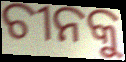
ଚୀନକୁ